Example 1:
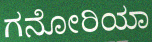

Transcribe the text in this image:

ಗನೋರಿಯಾ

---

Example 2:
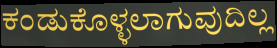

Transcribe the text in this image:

ಕಂಡುಕೊಳ್ಳಲಾಗುವುದಿಲ್ಲ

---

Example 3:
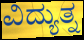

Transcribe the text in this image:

ವಿದ್ಯುತ್ನ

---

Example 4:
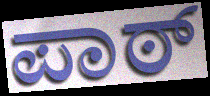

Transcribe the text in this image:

ಪಾಠ್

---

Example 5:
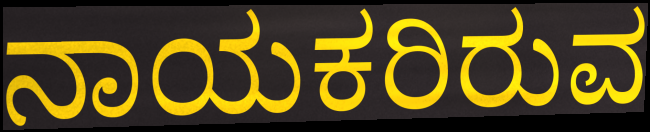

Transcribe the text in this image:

ನಾಯಕರಿರುವ